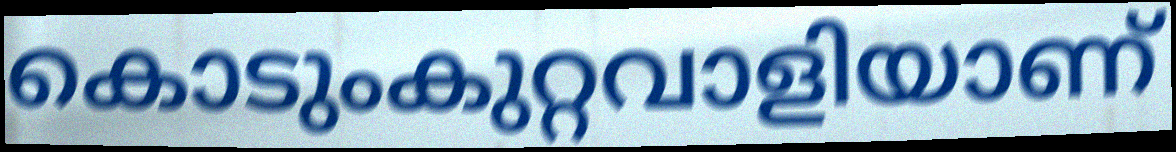
കൊടുംകുറ്റവാളിയാണ്